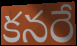
కనరే